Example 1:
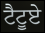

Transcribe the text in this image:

ਟੈਟੂਏ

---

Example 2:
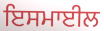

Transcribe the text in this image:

ਇਸਮਾਈਲ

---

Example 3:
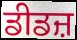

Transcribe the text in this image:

ਡੀਡਜ਼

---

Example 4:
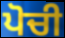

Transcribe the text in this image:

ਪੋਚੀ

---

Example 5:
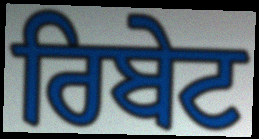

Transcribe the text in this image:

ਰਿਬੇਟ